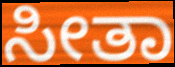
ಸೀತಾ